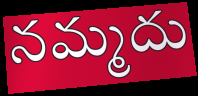
నమ్మదు